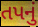
તપનું